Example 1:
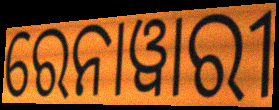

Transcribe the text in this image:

ରେନାୱାରୀ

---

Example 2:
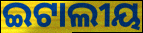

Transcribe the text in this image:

ଇଟାଲୀୟ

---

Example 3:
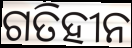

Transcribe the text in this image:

ଗତିହୀନ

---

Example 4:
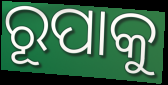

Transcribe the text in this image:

ରୂପାକୁ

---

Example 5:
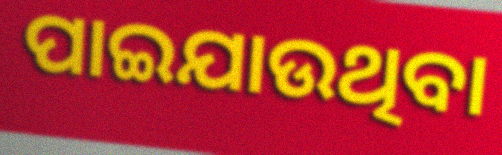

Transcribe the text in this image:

ପାଇଯାଉଥିବା